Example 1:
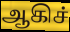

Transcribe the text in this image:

ஆகிச்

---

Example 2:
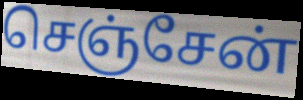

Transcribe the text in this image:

செஞ்சேன்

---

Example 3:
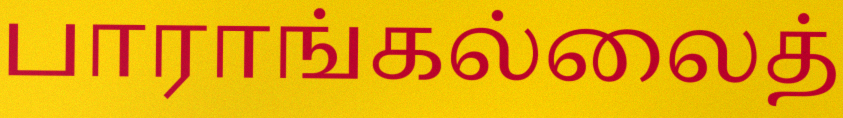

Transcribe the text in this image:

பாராங்கல்லைத்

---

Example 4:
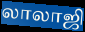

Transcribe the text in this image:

லாலாஜி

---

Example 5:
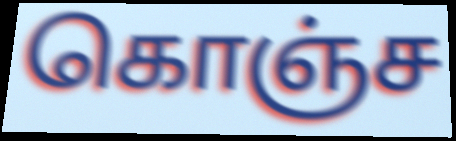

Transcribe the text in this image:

கொஞ்ச